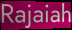
Rajaiah